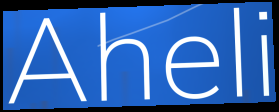
Aheli